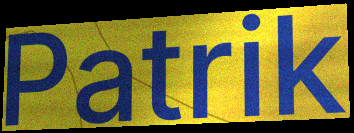
Patrik